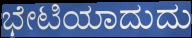
ಭೇಟಿಯಾದುದು